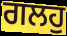
ਗਲਹੁ